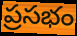
ప్రసభం